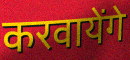
करवायेंगे